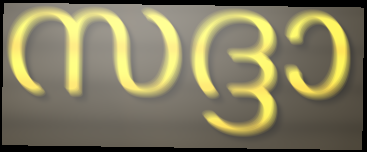
സദ്ദാ